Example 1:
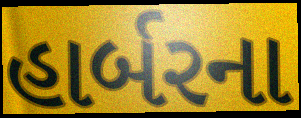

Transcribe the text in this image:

હાર્બરના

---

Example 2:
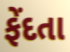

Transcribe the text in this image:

ફેંદતા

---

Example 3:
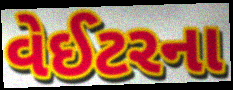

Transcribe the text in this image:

વેઈટરના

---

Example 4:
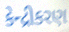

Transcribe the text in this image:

કેન્દ્રીકરણ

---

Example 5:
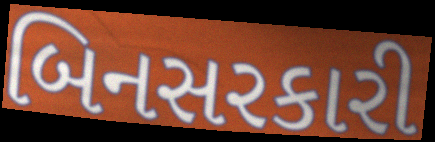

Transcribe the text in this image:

બિનસરકારી